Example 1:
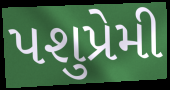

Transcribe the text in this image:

પશુપ્રેમી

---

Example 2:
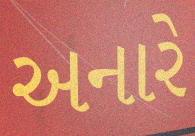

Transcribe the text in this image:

અનારે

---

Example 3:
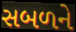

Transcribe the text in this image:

સબળને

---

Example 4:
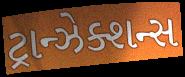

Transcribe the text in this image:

ટ્રાન્ઝેક્શન્સ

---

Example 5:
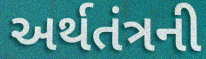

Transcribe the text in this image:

અર્થતંત્રની